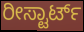
ರೀಸ್ಟಾರ್ಟ್